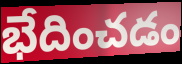
భేదించడం